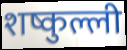
शष्कुल्ली